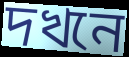
দখনে